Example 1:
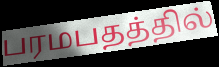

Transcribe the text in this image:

பரமபதத்தில்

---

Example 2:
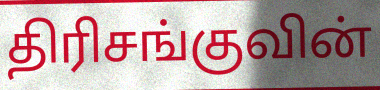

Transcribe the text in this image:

திரிசங்குவின்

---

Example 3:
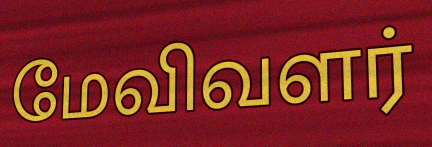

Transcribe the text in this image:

மேவிவளர்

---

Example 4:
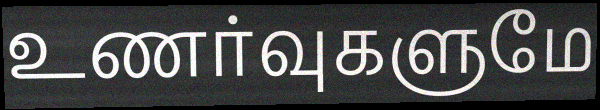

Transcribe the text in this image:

உணர்வுகளுமே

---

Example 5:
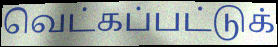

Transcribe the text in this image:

வெட்கப்பட்டுக்